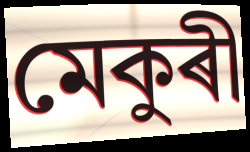
মেকুৰী